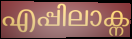
എപ്പിലാക്ന